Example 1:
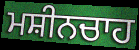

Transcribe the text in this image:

ਮਸ਼ੀਨਚਾਹ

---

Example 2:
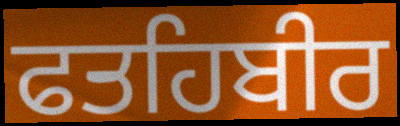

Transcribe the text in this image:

ਫਤਹਿਬੀਰ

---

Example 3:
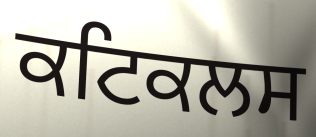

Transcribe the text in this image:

ਕਟਿਕਲਸ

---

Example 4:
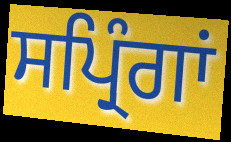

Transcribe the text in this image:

ਸਪ੍ਰਿੰਗਾਂ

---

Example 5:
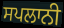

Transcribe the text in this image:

ਸਪਲਾਨੀ